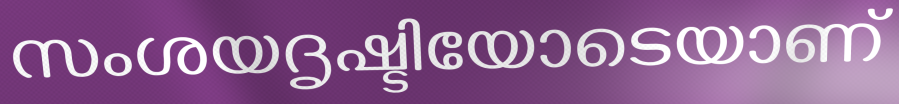
സംശയദൃഷ്ടിയോടെയാണ്